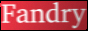
Fandry